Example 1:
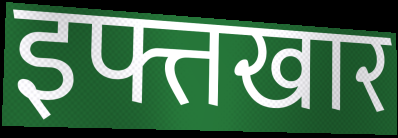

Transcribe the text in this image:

इफ्तखार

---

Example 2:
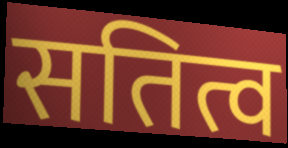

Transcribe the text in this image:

सतित्व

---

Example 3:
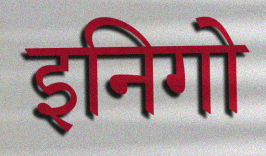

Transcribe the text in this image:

इनिगो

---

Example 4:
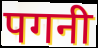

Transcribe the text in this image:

पगनी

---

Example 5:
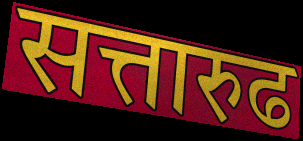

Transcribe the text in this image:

सत्तारुढ